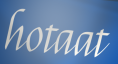
hotaat